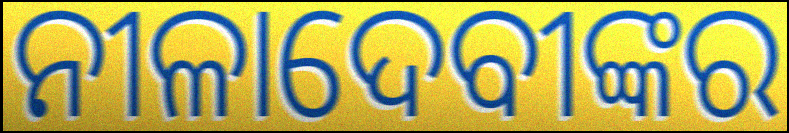
ନୀଳାଦେବୀଙ୍କର